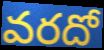
వరదో